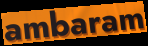
ambaram